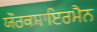
ਯੌਰਕਸ਼ਾਇਰਮੈਨ